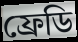
ফ্রেডি